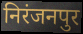
निरंजनपुर